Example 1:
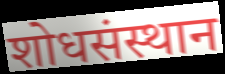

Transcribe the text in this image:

शोधसंस्थान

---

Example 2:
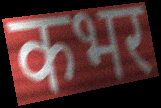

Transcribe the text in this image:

कभर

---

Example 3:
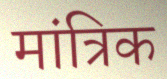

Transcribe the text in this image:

मांत्रिक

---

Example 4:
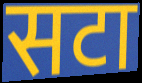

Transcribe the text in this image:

सटा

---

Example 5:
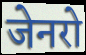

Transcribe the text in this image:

जेनरो